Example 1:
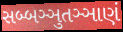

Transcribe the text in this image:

સબ્બઞ્ઞુતઞ્ઞાણં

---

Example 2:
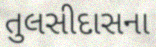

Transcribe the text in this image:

તુલસીદાસના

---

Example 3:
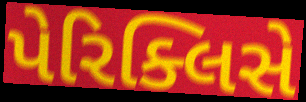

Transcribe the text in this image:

પેરિક્લિસે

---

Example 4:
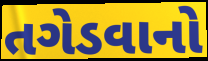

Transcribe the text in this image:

તગેડવાનો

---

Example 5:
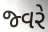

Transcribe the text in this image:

જ્વરે